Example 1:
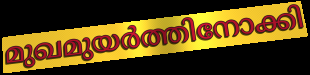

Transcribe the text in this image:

മുഖമുയർത്തിനോക്കി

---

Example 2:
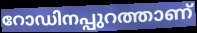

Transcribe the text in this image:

റോഡിനപ്പുറത്താണ്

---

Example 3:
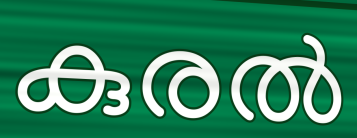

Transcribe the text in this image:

കുരൽ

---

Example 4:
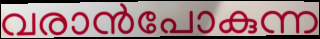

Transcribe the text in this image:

വരാൻപോകുന്ന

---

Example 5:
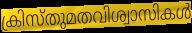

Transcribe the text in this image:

ക്രിസ്തുമതവിശ്വാസികൾ